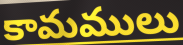
కామములు